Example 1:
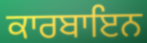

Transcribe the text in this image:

ਕਾਰਬਾਇਨ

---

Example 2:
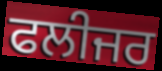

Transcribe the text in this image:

ਫਲੀਜਰ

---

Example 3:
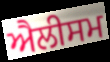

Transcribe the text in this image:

ਐਲੀਸਮ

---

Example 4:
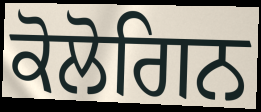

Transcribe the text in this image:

ਕੋਲੋਗਿਨ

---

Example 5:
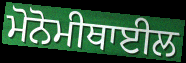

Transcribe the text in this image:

ਮੋਨੋਮੀਥਾਈਲ